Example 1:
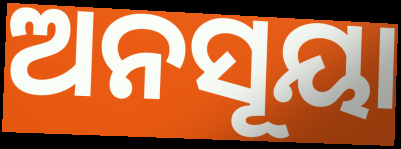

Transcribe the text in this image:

ଅନସୂୟା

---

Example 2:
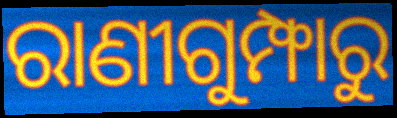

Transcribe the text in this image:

ରାଣୀଗୁମ୍ଫାରୁ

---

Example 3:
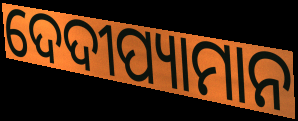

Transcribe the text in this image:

ଦେଦୀପ୍ୟାମାନ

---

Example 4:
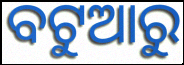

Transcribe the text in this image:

ବଟୁଆରୁ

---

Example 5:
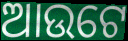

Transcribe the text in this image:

ଆଉଟେ